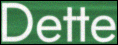
Dette